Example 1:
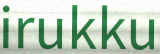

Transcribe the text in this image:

irukku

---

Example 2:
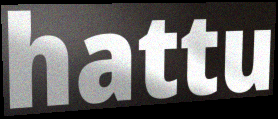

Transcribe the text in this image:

hattu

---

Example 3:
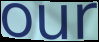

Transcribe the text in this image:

our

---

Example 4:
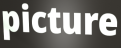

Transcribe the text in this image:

picture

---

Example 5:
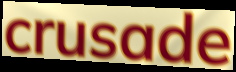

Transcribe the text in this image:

crusade